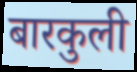
बारकुली